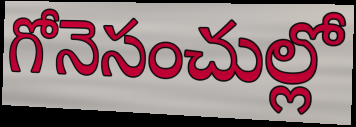
గోనెసంచుల్లో